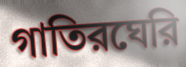
গাতিরঘেরি